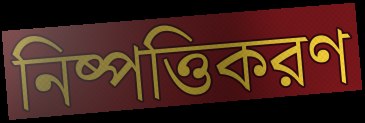
নিষ্পত্তিকরণ